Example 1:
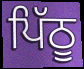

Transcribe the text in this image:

ਪਿੱਠੂ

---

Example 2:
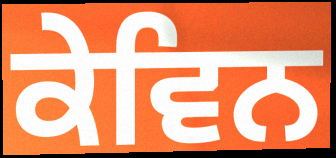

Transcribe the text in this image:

ਕੇਵਿਨ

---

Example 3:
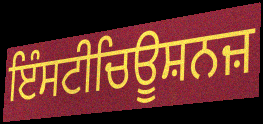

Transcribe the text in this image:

ਇੰਸਟੀਚਿਊਸ਼ਨਜ਼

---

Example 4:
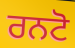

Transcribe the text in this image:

ਰਨਟੋ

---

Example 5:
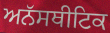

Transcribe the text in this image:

ਅਨੱਸਥੀਟਿਕ